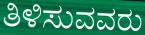
ತಿಳಿಸುವವರು